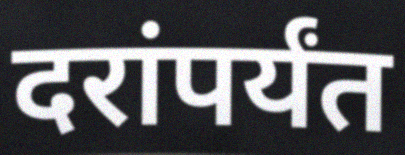
दरांपर्यंत